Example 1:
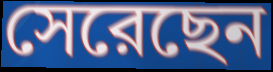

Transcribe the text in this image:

সেরেছেন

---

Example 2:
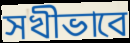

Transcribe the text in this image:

সখীভাবে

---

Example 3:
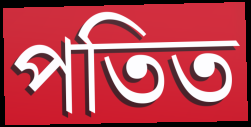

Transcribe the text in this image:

পতিত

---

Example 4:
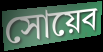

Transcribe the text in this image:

সোয়েব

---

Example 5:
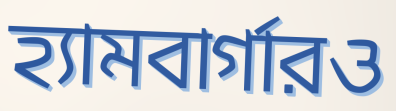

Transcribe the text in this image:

হ্যামবার্গারও